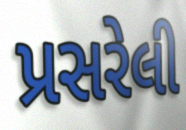
પ્રસરેલી